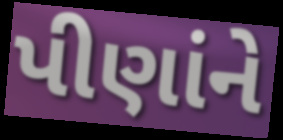
પીણાંને